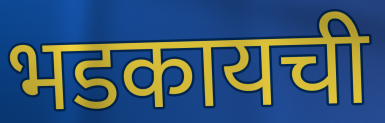
भडकायची